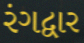
રંગદ્વાર